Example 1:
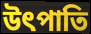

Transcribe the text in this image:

উৎপাতি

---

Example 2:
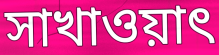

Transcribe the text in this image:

সাখাওয়াৎ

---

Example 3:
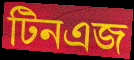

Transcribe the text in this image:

টিনএজ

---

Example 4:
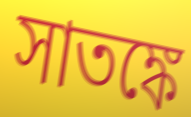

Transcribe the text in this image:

সাতঙ্কে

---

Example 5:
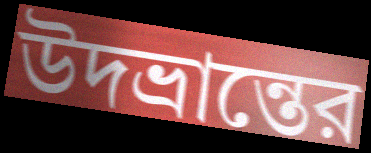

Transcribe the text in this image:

উদভ্রান্তের